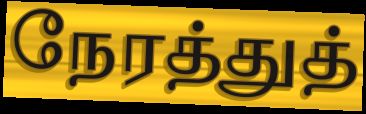
நேரத்துத்